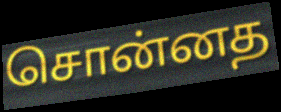
சொன்னத